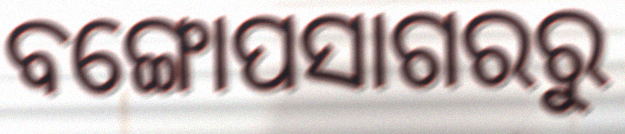
ବଙ୍ଗୋପସାଗରରୁ